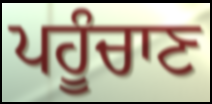
ਪਹੂੰਚਾਣ